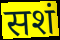
सशं